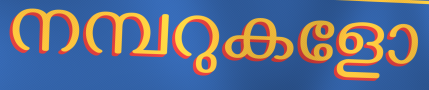
നമ്പറുകളോ